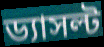
ড্যাসল্ট